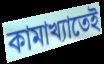
কামাখ্যাতেই